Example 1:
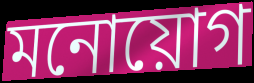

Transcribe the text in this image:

মনোয়োগ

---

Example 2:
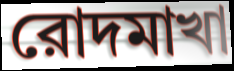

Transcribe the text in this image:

রোদমাখা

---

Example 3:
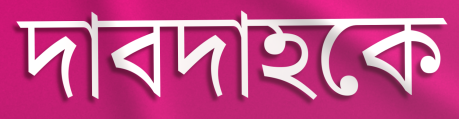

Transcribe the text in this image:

দাবদাহকে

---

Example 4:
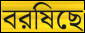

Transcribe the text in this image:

বরষিছে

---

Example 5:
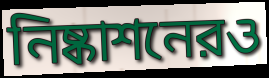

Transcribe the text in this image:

নিষ্কাশনেরও